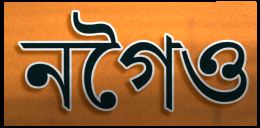
নগৈও